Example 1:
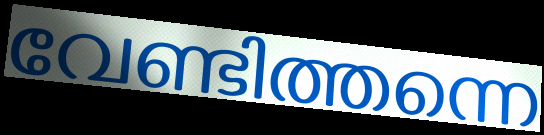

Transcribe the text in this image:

വേണ്ടിത്തന്നെ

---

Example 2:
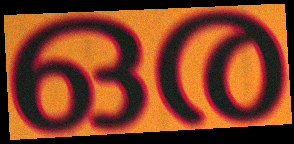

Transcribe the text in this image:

ഒര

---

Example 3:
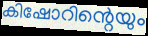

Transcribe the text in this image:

കിഷോറിന്റെയും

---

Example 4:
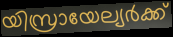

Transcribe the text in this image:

യിസ്രായേല്യർക്ക്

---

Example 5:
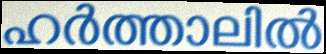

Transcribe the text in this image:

ഹർത്താലിൽ